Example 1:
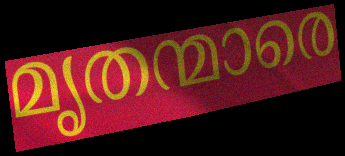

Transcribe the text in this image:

മൃതന്മാരെ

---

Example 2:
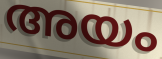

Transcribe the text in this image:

അയം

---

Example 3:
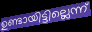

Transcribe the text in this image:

ഉണ്ടായിട്ടില്ലെന്ന്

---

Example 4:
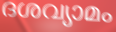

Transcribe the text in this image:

ദശവ്യാമം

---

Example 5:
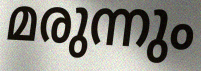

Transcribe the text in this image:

മരുന്നും